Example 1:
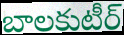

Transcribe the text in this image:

బాలకుటీర్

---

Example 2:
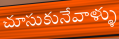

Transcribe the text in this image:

చూసుకునేవాళ్ళు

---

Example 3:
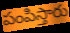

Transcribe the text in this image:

పంపిస్తారు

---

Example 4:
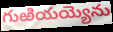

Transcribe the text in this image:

గుఱియయ్యెను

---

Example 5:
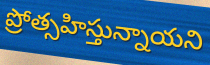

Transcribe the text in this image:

ప్రోత్సహిస్తున్నాయని